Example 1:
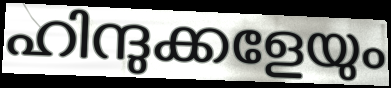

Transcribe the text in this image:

ഹിന്ദുക്കളേയും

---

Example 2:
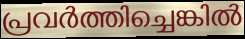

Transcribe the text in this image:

പ്രവർത്തിച്ചെങ്കിൽ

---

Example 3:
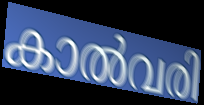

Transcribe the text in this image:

കാൽവരി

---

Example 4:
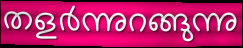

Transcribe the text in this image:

തളർന്നുറങ്ങുന്നു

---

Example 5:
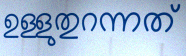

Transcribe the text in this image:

ഉള്ളുതുറന്നത്